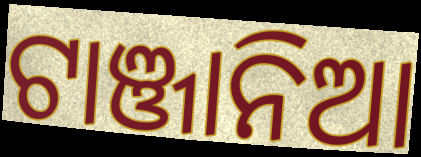
ଟାଞ୍ଜାନିଆ